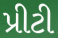
પ્રીટી